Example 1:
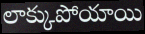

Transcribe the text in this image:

లాక్కుపోయాయి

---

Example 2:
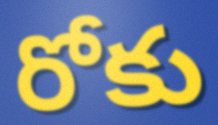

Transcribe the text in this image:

రోకు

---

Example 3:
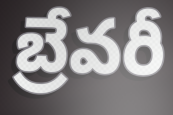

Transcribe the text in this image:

బ్రేవరీ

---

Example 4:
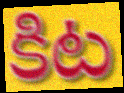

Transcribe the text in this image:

కిట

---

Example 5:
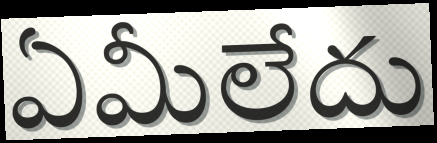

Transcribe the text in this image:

ఏమీలేదు